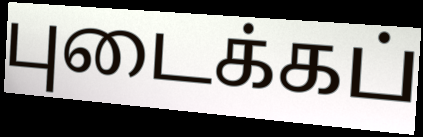
புடைக்கப்